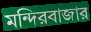
মন্দিরবাজার